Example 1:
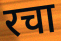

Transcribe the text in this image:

रचा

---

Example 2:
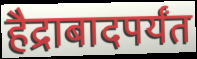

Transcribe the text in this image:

हैद्राबादपर्यंत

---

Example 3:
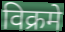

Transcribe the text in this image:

विक्रमे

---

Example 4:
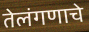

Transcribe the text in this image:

तेलंगणाचे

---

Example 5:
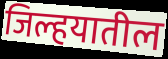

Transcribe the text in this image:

जिल्हयातील